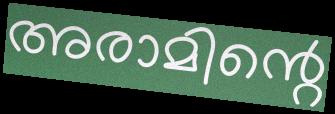
അരാമിന്റെ